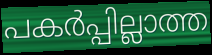
പകർപ്പില്ലാത്ത